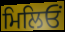
ਮਿਲਿਓਂ